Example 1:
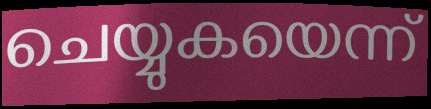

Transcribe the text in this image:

ചെയ്യുകയെന്ന്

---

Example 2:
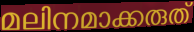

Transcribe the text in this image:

മലിനമാക്കരുത്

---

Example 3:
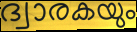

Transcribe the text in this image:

ദ്വാരകയും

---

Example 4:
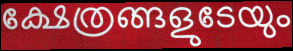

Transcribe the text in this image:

ക്ഷേത്രങ്ങളുടേയും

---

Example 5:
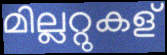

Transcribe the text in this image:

മില്ലറ്റുകള്